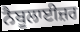
ਨੈਬੂਲਾਈਜ਼ਰ